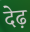
देढ़